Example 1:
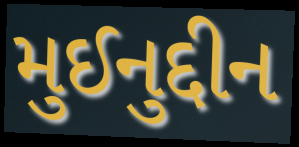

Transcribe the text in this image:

મુઈનુદ્દીન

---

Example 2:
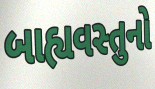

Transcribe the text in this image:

બાહ્યવસ્તુનો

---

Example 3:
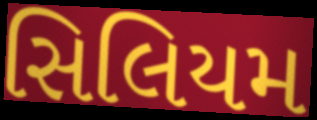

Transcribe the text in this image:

સિલિયમ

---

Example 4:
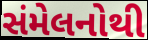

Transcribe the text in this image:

સંમેલનોથી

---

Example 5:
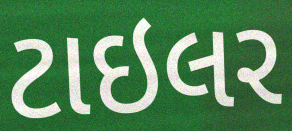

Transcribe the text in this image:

ટાઇલર